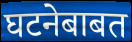
घटनेबाबत